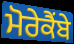
ਮੋਰੇਕੈਂਬੇ